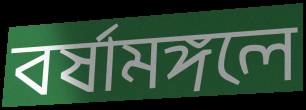
বর্ষামঙ্গলে